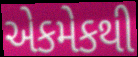
એકમેકથી